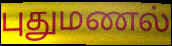
புதுமணல்